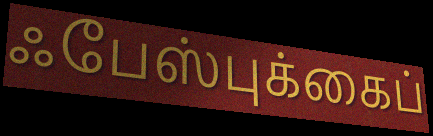
ஃபேஸ்புக்கைப்